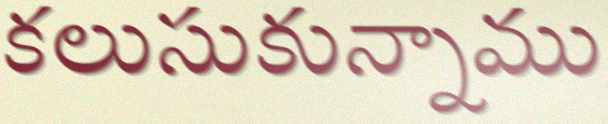
కలుసుకున్నాము